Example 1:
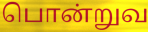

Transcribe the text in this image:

பொன்றுவ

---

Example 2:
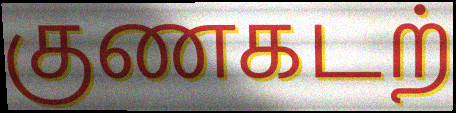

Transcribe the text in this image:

குணகடற்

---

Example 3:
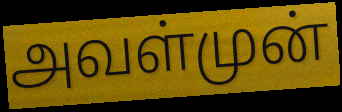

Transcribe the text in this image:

அவள்முன்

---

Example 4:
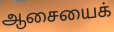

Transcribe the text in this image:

ஆசையைக்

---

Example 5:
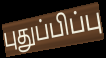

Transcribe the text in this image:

புதுப்பிப்பு